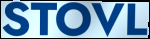
STOVL